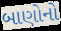
બાણોનો